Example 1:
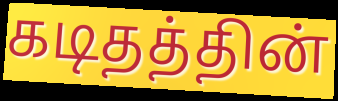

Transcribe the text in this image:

கடிதத்தின்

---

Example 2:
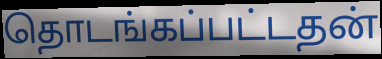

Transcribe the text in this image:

தொடங்கப்பட்டதன்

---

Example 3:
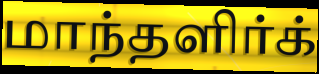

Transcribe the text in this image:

மாந்தளிர்க்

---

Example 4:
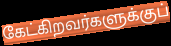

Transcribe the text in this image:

கேட்கிறவர்களுக்குப்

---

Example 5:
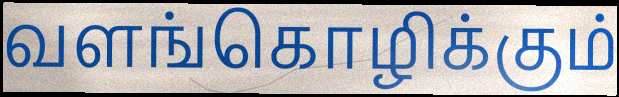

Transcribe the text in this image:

வளங்கொழிக்கும்